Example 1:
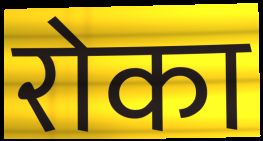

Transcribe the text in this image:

रोका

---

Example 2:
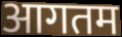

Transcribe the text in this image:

आगतम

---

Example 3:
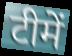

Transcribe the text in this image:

टीमें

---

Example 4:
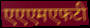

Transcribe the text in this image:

एएएमएफटी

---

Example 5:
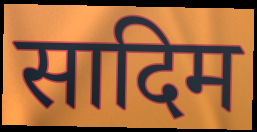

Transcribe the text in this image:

सादिम